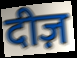
दीज़